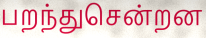
பறந்துசென்றன